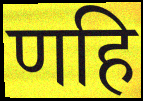
णहि